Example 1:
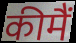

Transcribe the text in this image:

कीमैं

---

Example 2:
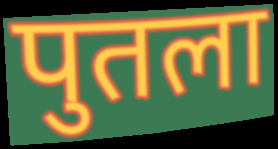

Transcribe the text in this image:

पुतला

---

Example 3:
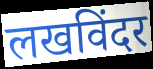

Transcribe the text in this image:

लखविंदर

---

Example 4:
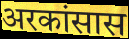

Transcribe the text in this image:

अरकांसास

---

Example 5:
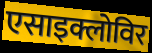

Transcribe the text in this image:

एसाइक्लोविर